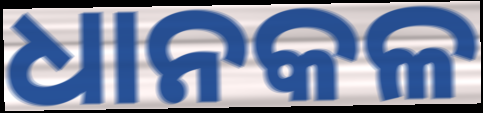
ଧାନକଳ